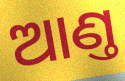
ଆଣ୍ତ